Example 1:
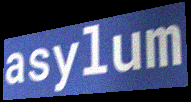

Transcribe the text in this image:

asylum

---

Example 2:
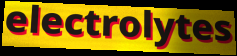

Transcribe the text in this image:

electrolytes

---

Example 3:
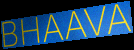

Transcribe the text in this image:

BHAAVA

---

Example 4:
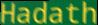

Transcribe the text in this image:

Hadath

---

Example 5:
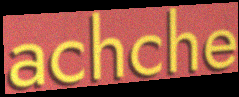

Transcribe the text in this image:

achche